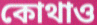
কোথাও